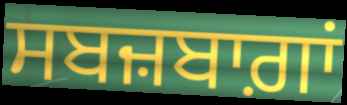
ਸਬਜ਼ਬਾਗ਼ਾਂ